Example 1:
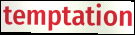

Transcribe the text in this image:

temptation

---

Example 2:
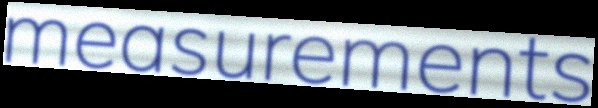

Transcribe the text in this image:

measurements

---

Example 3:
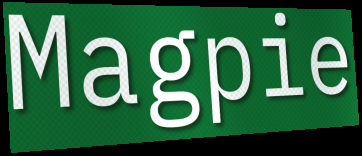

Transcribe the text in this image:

Magpie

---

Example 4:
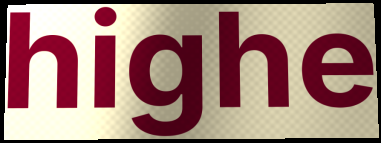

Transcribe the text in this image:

highe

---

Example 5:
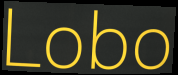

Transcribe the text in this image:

Lobo